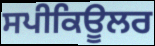
ਸਪੀਕਿਊਲਰ